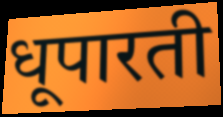
धूपारती